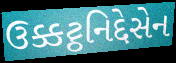
ઉક્કટ્ઠનિદ્દેસેન